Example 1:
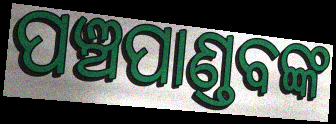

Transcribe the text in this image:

ପଞ୍ଚପାଣ୍ଡବଙ୍କ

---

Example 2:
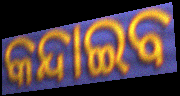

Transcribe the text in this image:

କନ୍ଦାଇବ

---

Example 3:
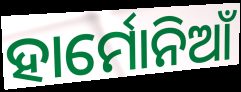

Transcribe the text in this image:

ହାର୍ମୋନିଆଁ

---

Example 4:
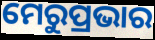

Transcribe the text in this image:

ମେରୁପ୍ରଭାର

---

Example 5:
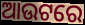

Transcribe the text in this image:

ଆଉଟରେ